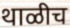
थाळीच